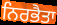
ਨਿਰਭੈਤਾ